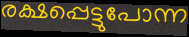
രക്ഷപ്പെട്ടുപോന്ന